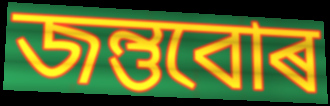
জন্তুবোৰ